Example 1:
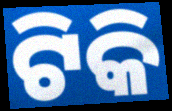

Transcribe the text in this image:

ଟିକି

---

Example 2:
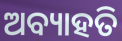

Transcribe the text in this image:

ଅବ୍ୟାହତି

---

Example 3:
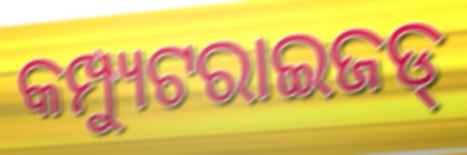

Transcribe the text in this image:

କମ୍ପ୍ୟୁଟରାଇଜଡ୍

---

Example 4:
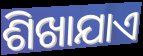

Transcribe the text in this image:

ଶିଖାଯାଏ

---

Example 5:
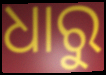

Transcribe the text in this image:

ଧାରୁ